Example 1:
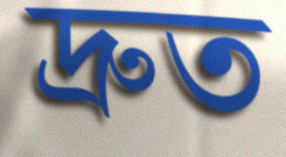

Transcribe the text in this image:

দ্ৰুত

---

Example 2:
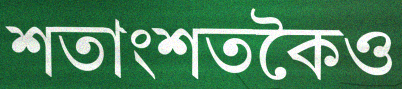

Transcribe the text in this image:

শতাংশতকৈও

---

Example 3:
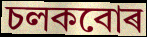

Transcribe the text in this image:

চলকবোৰ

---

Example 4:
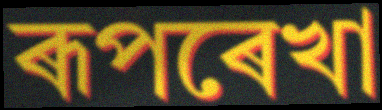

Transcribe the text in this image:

ৰূপৰেখা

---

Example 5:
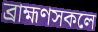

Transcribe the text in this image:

ব্ৰাহ্মণসকলে